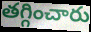
తగ్గించారు